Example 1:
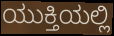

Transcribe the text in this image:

ಯುಕ್ತಿಯಲ್ಲಿ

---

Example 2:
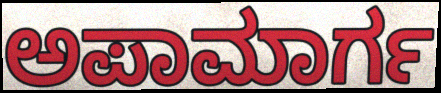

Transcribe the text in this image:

ಅಪಾಮಾರ್ಗ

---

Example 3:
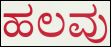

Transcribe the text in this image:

ಹಲವು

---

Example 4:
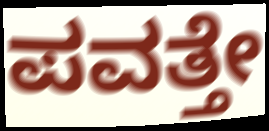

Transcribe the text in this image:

ಪವತ್ತೇ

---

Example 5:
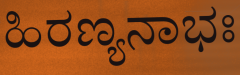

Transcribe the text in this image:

ಹಿರಣ್ಯನಾಭಃ